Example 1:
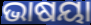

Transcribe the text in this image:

ଭାଷୟା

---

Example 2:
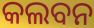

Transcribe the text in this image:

କଲବନ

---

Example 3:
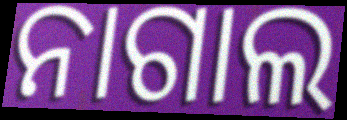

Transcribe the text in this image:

ନାଗାଲ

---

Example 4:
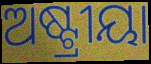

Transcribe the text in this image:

ଅଷ୍ଟ୍ରୀୟା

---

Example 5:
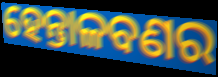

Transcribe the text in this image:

ହେନ୍ତାଳବଣର